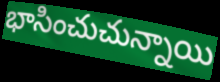
భాసించుచున్నాయి